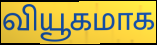
வியூகமாக